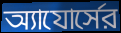
অ্যাযোর্সের